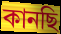
কানছি